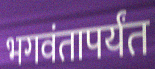
भगवंतापर्यंत